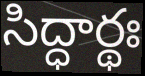
సిద్ధార్థః